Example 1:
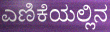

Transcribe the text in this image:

ಎಣಿಕೆಯಲ್ಲಿನ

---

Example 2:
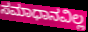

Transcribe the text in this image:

ಸಮಾಧಾನವಿಲ್ಲ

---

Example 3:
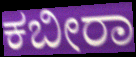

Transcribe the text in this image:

ಕಬೀರಾ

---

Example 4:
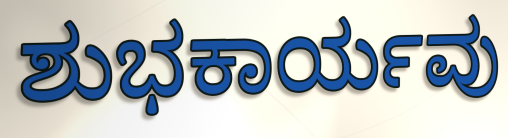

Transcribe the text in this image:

ಶುಭಕಾರ್ಯವು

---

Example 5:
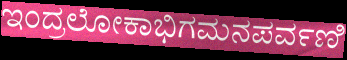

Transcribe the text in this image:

ಇಂದ್ರಲೋಕಾಭಿಗಮನಪರ್ವಣಿ